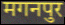
मगनपुर